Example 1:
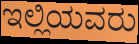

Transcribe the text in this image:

ಇಲ್ಲಿಯವರು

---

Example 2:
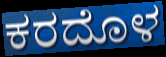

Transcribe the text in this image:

ಕರದೊಳ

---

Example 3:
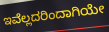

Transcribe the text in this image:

ಇವೆಲ್ಲದರಿಂದಾಗಿಯೇ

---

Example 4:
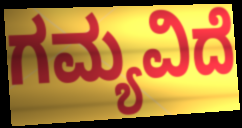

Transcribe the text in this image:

ಗಮ್ಯವಿದೆ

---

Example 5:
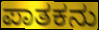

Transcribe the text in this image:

ಪಾತಕನು